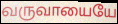
வருவாயையே